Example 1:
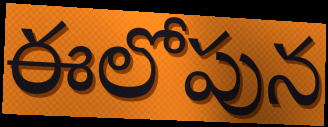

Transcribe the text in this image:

ఈలోపున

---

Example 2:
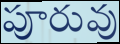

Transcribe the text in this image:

పూరువు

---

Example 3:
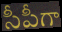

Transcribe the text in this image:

సీపీగా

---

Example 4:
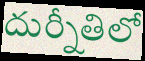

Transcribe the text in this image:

దుర్నీతిలో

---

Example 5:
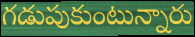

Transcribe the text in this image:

గడుపుకుంటున్నారు